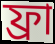
ফ্ৰা